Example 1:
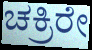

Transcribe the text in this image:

ಚಕ್ರಿರೇ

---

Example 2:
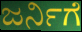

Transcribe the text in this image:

ಜರ್ನಿಗೆ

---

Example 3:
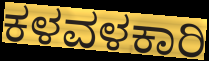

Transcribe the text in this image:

ಕಳವಳಕಾರಿ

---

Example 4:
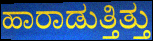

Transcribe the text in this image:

ಹಾರಾಡುತ್ತಿತ್ತು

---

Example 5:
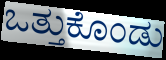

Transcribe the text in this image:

ಒತ್ತುಕೊಂಡು